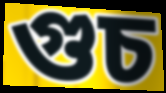
গুচ